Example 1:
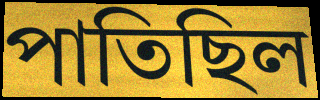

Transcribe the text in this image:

পাতিছিল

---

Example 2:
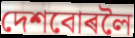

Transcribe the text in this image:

দেশবোৰলৈ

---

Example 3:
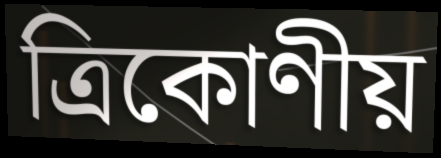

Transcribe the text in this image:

ত্ৰিকোণীয়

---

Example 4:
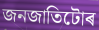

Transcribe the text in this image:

জনজাতিটোৰ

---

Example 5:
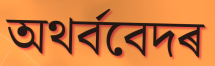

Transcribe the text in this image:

অথৰ্ববেদৰ